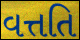
વત્તતિ